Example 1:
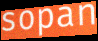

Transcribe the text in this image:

sopan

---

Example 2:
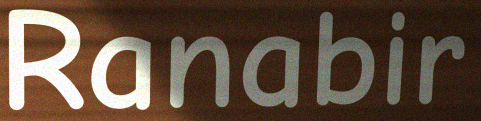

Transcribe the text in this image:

Ranabir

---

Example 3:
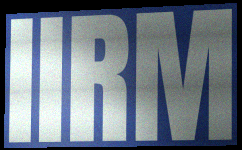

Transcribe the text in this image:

IIRM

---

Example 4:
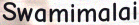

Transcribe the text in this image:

Swamimalai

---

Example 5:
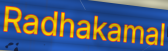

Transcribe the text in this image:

Radhakamal